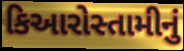
કિઆરોસ્તામીનું